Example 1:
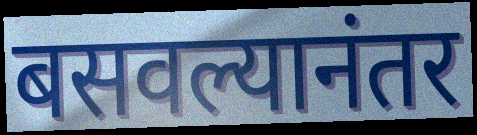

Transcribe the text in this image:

बसवल्यानंतर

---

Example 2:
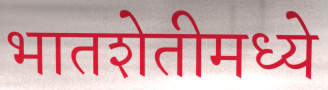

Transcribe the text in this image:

भातशेतीमध्ये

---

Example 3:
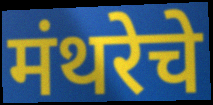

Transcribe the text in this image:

मंथरेचे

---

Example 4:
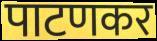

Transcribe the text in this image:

पाटणकर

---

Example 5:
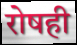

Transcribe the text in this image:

रोषही